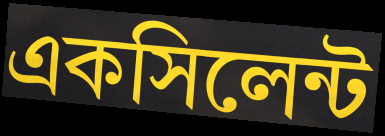
একসিলেন্ট